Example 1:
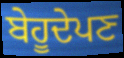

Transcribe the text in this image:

ਬੇਹੂਦੇਪਣ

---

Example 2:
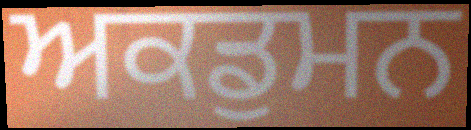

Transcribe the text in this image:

ਅਕਡੁਮਨ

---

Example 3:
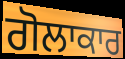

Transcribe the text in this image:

ਗੋਲਾਕਾਰ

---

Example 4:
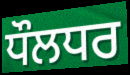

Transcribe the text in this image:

ਧੌਲਧਰ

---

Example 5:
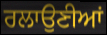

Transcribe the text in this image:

ਰਲਾਉਣੀਆਂ